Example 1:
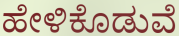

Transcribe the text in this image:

ಹೇಳಿಕೊಡುವೆ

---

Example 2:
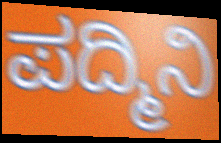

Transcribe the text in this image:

ಪದ್ಮಿನಿ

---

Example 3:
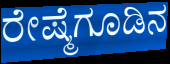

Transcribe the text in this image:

ರೇಷ್ಮೆಗೂಡಿನ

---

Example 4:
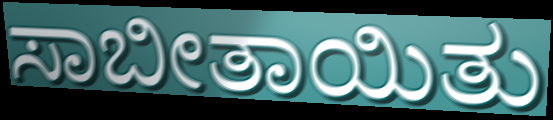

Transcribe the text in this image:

ಸಾಬೀತಾಯಿತು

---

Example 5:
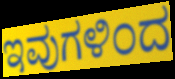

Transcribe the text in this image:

ಇವುಗಳಿಂದ